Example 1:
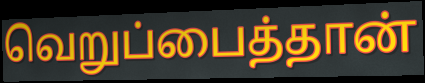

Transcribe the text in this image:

வெறுப்பைத்தான்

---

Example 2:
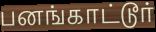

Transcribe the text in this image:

பனங்காட்டூர்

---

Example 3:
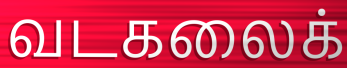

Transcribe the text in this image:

வடகலைக்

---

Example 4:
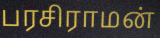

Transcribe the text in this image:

பரசிராமன்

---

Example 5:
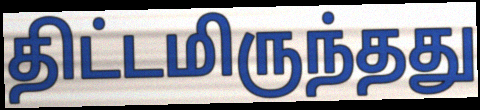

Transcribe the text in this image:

திட்டமிருந்தது